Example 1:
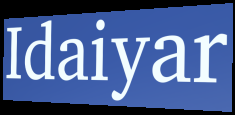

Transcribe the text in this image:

Idaiyar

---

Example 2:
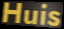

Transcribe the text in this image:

Huis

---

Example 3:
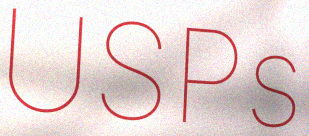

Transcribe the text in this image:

USPs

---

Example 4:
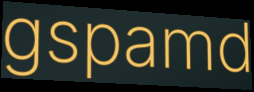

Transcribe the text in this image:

gspamd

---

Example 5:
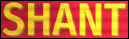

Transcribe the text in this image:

SHANT